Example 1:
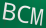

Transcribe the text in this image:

BCM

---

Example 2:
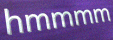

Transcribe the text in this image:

hmmmm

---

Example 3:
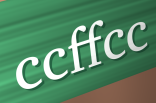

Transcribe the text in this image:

ccffcc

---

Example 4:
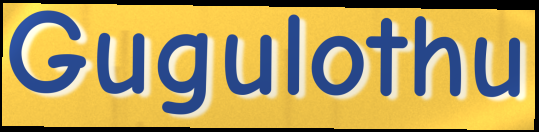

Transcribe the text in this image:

Gugulothu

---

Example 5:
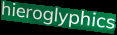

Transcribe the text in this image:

hieroglyphics